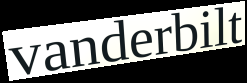
vanderbilt